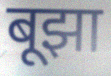
बूझा